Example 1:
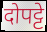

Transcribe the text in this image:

दोपट्टे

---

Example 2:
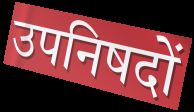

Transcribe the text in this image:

उपनिषदों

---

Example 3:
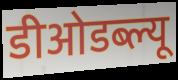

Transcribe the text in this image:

डीओडब्ल्यू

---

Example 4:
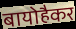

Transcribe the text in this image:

बायोहैकर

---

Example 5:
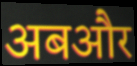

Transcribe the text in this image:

अबऔर